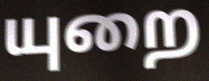
யுறை